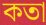
কতা